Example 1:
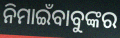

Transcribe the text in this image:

ନିମାଇଁବାବୁଙ୍କର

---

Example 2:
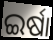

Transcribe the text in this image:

ଇର୍ଷା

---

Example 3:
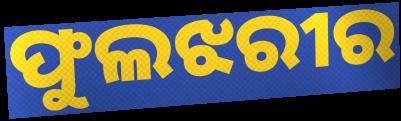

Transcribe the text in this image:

ଫୁଲଝରୀର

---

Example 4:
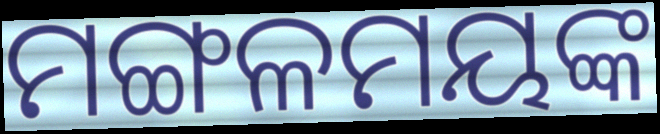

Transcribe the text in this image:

ମଙ୍ଗଳମୟଙ୍କ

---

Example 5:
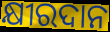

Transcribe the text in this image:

କ୍ଷୀରଦାନ